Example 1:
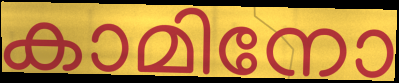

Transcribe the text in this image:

കാമിനോ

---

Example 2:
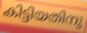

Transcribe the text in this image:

കിട്ടിയതിനു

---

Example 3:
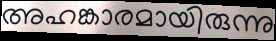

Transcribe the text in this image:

അഹങ്കാരമായിരുന്നു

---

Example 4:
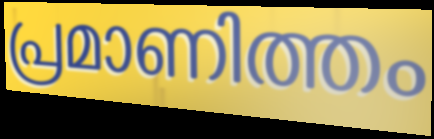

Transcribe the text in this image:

പ്രമാണിത്തം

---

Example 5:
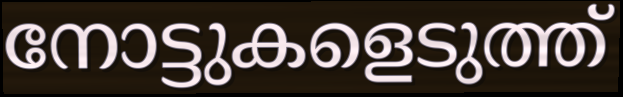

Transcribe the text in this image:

നോട്ടുകളെടുത്ത്